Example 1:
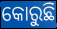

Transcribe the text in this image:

କୋରୁଛି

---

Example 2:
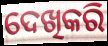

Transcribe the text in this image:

ଦେଖିକରି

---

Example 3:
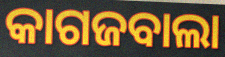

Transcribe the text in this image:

କାଗଜବାଲା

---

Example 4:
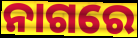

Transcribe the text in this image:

ନାଗରେ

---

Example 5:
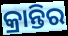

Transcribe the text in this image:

କ୍ରାନ୍ତିର